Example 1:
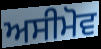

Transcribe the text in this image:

ਅਸੀਮੋਵ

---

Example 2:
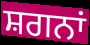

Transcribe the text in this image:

ਸ਼ਗਨਾਂ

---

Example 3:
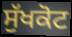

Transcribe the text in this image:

ਸੁੱਖਕੋਟ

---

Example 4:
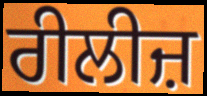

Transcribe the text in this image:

ਰੀਲੀਜ਼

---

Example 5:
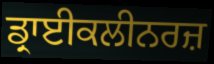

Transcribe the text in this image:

ਡ੍ਰਾਈਕਲੀਨਰਜ਼